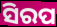
ସିରପ